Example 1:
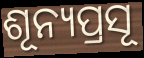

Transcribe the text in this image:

ଶୂନ୍ୟପ୍ରସୂ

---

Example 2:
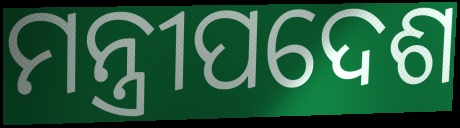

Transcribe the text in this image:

ମନ୍ତ୍ରୀପଦେଶ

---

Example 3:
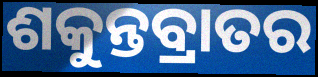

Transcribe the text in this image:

ଶକୁନ୍ତବ୍ରାତର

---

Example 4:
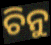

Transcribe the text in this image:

ଚିନୁ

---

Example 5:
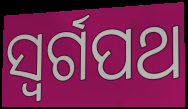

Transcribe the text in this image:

ସ୍ୱର୍ଗପଥ